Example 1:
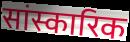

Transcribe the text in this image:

सांस्कारिक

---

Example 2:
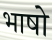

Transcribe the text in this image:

भाषो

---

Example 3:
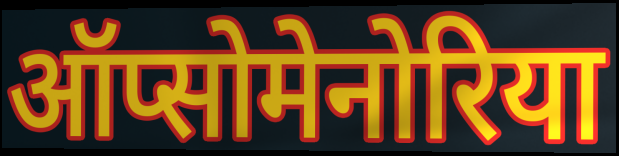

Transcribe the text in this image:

ऑप्सोमेनोरिया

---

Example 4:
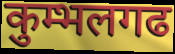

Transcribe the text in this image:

कुम्भलगढ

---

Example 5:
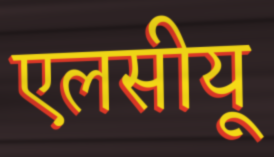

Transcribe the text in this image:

एलसीयू